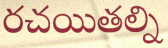
రచయితల్ని